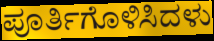
ಪೂರ್ತಿಗೊಳಿಸಿದಳು